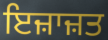
ਇਜ਼ਾਜ਼ਤ